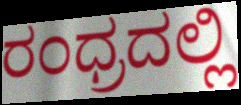
ರಂಧ್ರದಲ್ಲಿ